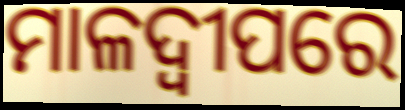
ମାଳଦ୍ବୀପରେ